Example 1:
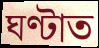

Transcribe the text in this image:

ঘণ্টাত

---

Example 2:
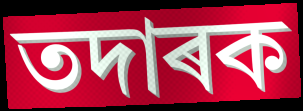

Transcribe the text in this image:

তদাৰক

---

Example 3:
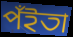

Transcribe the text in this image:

পঁইতা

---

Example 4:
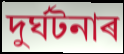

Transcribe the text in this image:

দুৰ্ঘটনাৰ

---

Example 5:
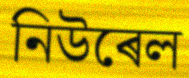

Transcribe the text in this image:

নিউৰেল